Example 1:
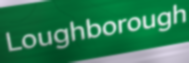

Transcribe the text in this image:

Loughborough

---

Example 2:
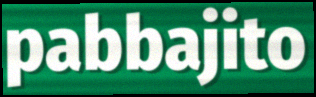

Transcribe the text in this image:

pabbajito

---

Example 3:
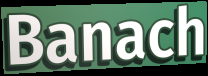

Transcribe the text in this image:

Banach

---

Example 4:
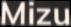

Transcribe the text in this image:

Mizu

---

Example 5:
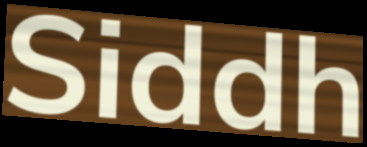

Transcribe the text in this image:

Siddh